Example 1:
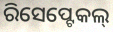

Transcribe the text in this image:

ରିସେପ୍ଟେକଲ୍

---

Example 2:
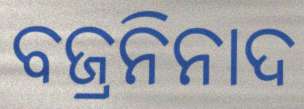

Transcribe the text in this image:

ବଜ୍ରନିନାଦ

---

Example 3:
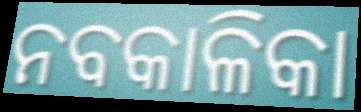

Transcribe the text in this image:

ନବକାଳିକା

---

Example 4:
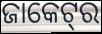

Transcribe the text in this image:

ଜାକେଟ୍‌ର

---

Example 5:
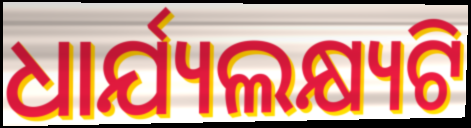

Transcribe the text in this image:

ଧାର୍ଯ୍ୟଲକ୍ଷ୍ୟଟି